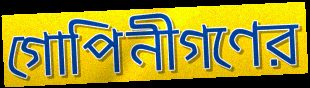
গোপিনীগণের